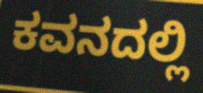
ಕವನದಲ್ಲಿ